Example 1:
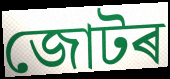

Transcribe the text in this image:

জোটৰ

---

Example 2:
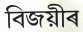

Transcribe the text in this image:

বিজয়ীৰ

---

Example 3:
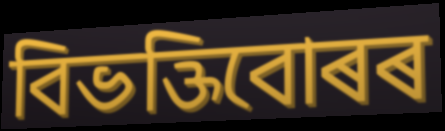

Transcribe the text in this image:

বিভক্তিবোৰৰ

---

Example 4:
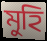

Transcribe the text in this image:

মুহি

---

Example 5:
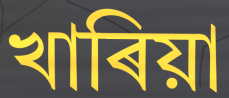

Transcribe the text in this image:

খাৰিয়া